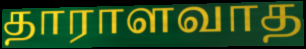
தாராளவாத